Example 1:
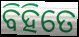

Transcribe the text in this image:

ବିହିତେ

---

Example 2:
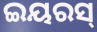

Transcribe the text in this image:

ଇୟରସ୍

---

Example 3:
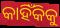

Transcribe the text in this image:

କାହିଁକିକୁ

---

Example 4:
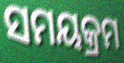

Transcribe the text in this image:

ସମୟକ୍ରମ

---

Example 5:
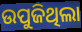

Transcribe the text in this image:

ଉପୁଜିଥିଲା